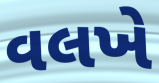
વલખે